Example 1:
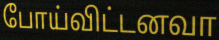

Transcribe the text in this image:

போய்விட்டனவா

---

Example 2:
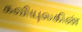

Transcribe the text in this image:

கவியுலகின்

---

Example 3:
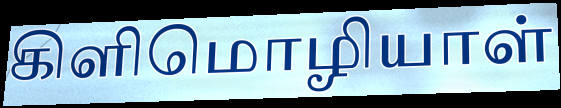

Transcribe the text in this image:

கிளிமொழியாள்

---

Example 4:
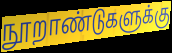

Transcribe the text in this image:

நூறாண்டுகளுக்கு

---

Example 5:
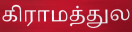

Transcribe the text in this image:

கிராமத்துல